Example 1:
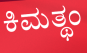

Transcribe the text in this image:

ಕಿಮತ್ಥಂ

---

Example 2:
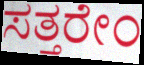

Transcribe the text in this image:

ಸತ್ತರೇಂ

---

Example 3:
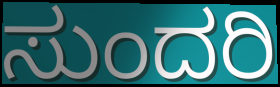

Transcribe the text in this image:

ಸುಂದರಿ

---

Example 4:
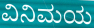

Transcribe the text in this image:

ವಿನಿಮಯ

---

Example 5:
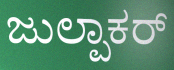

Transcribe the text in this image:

ಜುಲ್ಪಾಕರ್